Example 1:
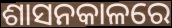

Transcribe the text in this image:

ଶାସନକାଳରେ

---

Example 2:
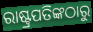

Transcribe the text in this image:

ରାଷ୍ଟ୍ରପତିଙ୍କଠାରୁ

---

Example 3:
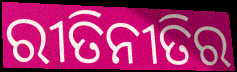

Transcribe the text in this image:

ରୀତିନୀତିର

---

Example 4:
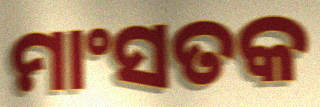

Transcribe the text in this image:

ମାଂସତକ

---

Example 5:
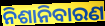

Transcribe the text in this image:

ନିଶାନିବାରଣ